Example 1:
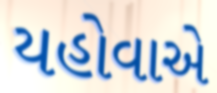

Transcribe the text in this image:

યહોવાએ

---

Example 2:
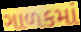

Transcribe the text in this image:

ગાળકમાં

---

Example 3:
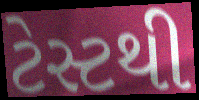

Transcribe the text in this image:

ટેસ્ટથી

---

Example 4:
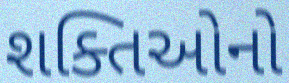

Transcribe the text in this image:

શક્તિઓનો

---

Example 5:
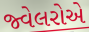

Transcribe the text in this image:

જ્વેલરોએ